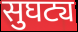
सुघट्य